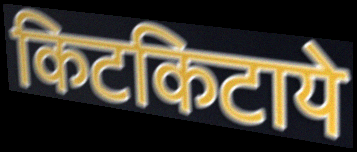
किटकिटाये